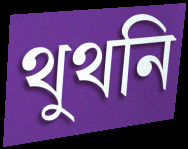
থুথনি